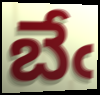
బేఁ